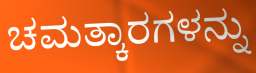
ಚಮತ್ಕಾರಗಳನ್ನು